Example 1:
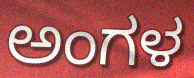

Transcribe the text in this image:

ಅಂಗಳ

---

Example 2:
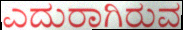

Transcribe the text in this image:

ಎದುರಾಗಿರುವ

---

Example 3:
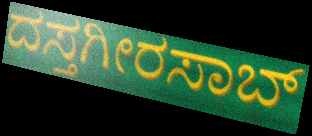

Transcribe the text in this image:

ದಸ್ತಗೀರಸಾಬ್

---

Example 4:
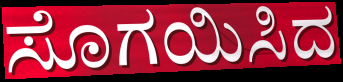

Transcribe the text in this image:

ಸೊಗಯಿಸಿದ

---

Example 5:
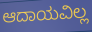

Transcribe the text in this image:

ಆದಾಯವಿಲ್ಲ